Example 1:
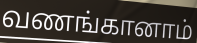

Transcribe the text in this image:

வணங்கானாம்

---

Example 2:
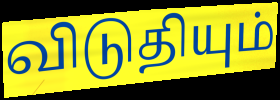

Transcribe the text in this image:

விடுதியும்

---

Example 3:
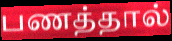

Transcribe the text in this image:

பணத்தால்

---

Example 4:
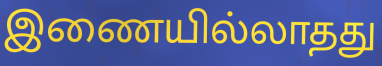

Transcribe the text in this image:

இணையில்லாதது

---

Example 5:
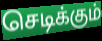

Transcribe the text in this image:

செடிக்கும்